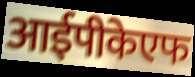
आईपीकेएफ